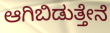
ಆಗಿಬಿಡುತ್ತೇನೆ